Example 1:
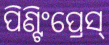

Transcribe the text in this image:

ପିଣ୍ଟିଂପ୍ରେସ୍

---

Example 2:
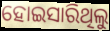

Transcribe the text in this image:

ହୋଇସାରିଥିଲୁ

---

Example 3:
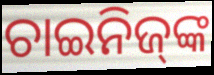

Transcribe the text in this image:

ଚାଇନିଜ୍‌ଙ୍କ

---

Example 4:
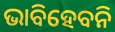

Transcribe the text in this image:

ଭାବିହେବନି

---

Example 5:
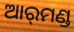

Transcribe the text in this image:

ଆର୍‌ମଣ୍ଡ